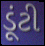
ડૂંટી